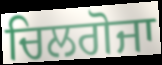
ਚਿਲਗੋਜਾ